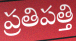
ప్రతిపత్తి